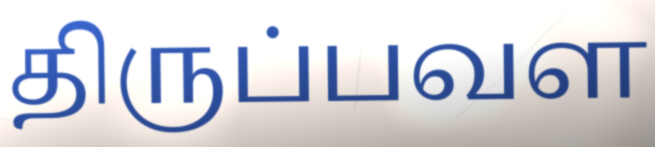
திருப்பவள